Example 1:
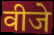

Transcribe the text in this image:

वीजे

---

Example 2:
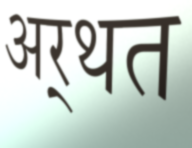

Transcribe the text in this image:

अर्थत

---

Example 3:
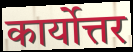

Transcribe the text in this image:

कार्योत्तर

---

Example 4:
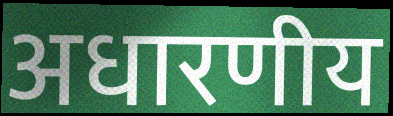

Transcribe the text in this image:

अधारणीय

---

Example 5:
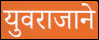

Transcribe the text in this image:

युवराजाने